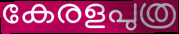
കേരളപുത്ര